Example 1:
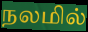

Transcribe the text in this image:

நலமில்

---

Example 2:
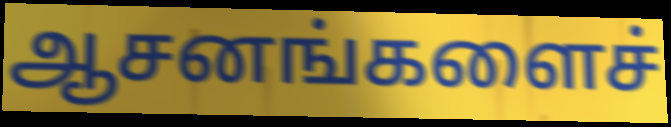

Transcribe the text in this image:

ஆசனங்களைச்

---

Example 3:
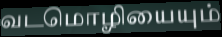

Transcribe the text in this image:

வடமொழியையும்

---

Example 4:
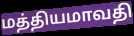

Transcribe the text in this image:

மத்தியமாவதி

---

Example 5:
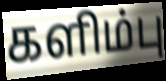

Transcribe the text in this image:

களிம்பு